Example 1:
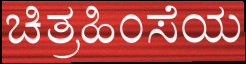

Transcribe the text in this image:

ಚಿತ್ರಹಿಂಸೆಯ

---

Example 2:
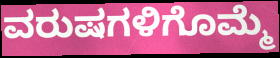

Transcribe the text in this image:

ವರುಷಗಳಿಗೊಮ್ಮೆ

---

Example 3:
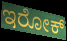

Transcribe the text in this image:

ಇರೋಕ್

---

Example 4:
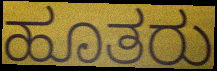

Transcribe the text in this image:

ಹೂತರು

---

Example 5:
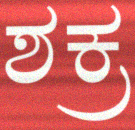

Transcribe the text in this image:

ಶಕ್ರ